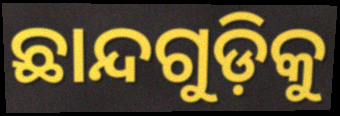
ଛାନ୍ଦଗୁଡ଼ିକୁ